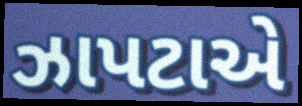
ઝાપટાએ